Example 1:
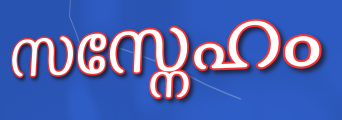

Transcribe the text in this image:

സസ്നേഹം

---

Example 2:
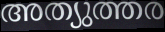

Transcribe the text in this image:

അത്യുത്തര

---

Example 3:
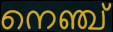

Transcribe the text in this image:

നെഞ്ച്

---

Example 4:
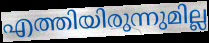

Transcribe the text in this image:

എത്തിയിരുന്നുമില്ല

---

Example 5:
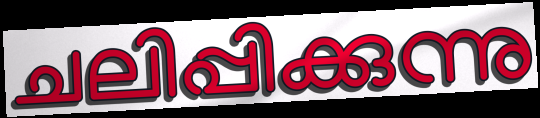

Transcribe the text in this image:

ചലിപ്പിക്കുന്നു